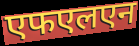
एफएलएन